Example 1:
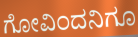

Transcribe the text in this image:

ಗೋವಿಂದನಿಗೂ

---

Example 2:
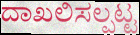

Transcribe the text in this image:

ದಾಖಲಿಸಲ್ಪಟ್ಟ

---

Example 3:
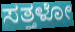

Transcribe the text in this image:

ಸತ್ತಳೋ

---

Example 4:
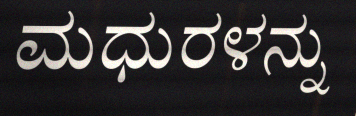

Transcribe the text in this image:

ಮಧುರಳನ್ನು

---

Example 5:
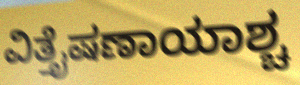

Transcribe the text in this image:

ವಿತ್ತೈಷಣಾಯಾಶ್ಚ